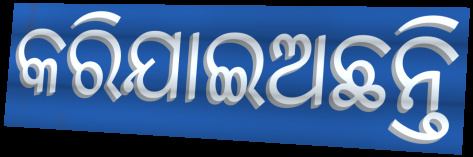
କରିଯାଇଅଛନ୍ତି